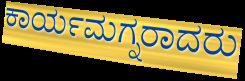
ಕಾರ್ಯಮಗ್ನರಾದರು